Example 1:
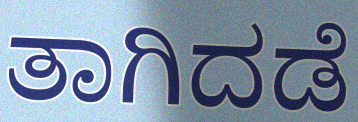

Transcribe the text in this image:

ತಾಗಿದಡೆ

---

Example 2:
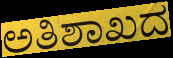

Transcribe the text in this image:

ಅತಿಶಾಖದ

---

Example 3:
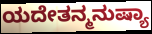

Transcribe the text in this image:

ಯದೇತನ್ಮನುಷ್ಯಾ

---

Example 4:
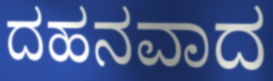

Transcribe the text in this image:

ದಹನವಾದ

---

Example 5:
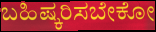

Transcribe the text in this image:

ಬಹಿಷ್ಕರಿಸಬೇಕೋ